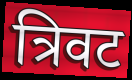
त्रिवट